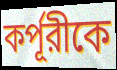
কর্পূরীকে